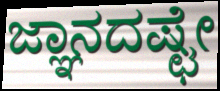
ಜ್ಞಾನದಷ್ಟೇ